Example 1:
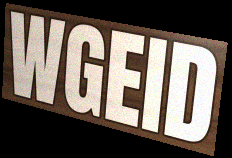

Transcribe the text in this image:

WGEID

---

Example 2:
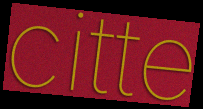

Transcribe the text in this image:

citte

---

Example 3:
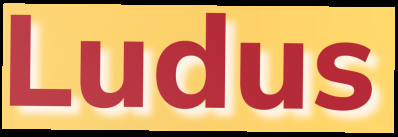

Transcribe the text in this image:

Ludus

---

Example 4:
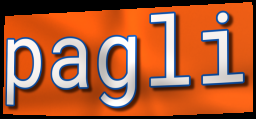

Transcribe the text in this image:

pagli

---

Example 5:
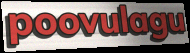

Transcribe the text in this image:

poovulagu